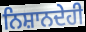
ਨਿਸ਼ਾਨਦੇਹੀ